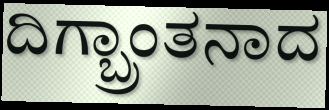
ದಿಗ್ಬ್ರಾಂತನಾದ